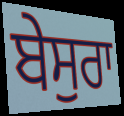
ਬੇਸੁਰਾ